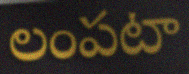
లంపటా